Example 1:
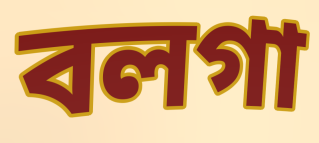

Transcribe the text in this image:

বলগা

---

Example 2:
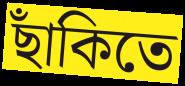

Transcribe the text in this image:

ছাঁকিতে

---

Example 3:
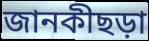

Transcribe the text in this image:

জানকীছড়া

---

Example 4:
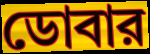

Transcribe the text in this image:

ডোবার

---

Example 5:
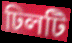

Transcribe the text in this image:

ঢিলটি